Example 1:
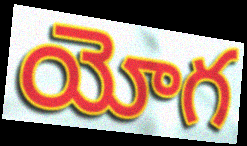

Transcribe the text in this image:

యోగ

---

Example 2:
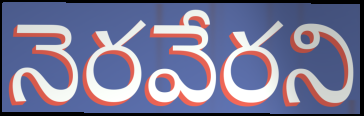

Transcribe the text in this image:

నెరవేరని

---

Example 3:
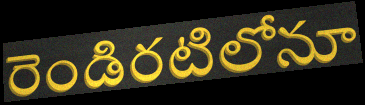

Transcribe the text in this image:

రెండిరటిలోనూ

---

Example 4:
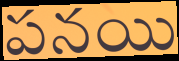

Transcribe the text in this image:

పనయి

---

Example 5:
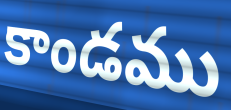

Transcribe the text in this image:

కాండము